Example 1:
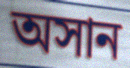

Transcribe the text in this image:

অসান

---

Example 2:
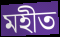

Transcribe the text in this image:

মহীত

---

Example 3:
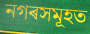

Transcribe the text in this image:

নগৰসমূহত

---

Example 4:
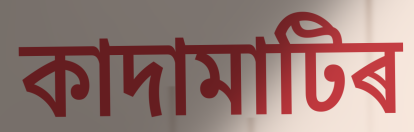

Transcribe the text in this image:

কাদামাটিৰ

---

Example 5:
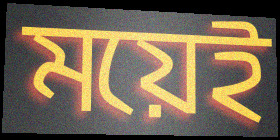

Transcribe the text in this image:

ময়েই